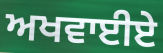
ਅਖਵਾਈਏ